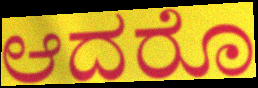
ಆದರೊ